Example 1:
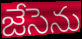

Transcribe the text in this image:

జేసెను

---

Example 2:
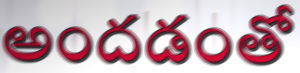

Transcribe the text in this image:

అందడంతో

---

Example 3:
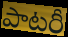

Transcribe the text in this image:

పాటరీ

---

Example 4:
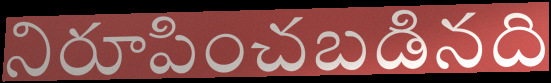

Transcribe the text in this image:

నిరూపించబడినది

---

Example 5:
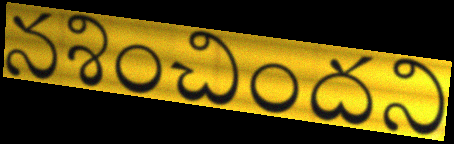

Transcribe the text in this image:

నశించిందని